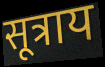
सूत्राय